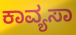
ಕಾವ್ಯಸಾ